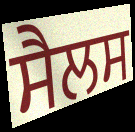
ਸੈਲਸ